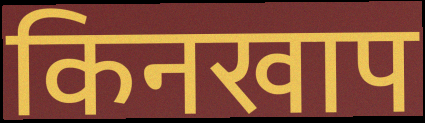
किनखाप